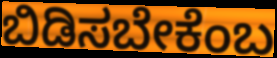
ಬಿಡಿಸಬೇಕೆಂಬ